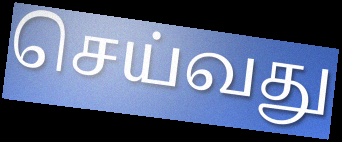
செய்வது